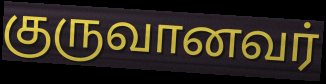
குருவானவர்